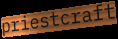
priestcraft